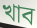
খাব